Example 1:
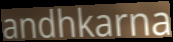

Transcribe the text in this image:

andhkarna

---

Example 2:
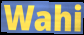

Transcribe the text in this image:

Wahi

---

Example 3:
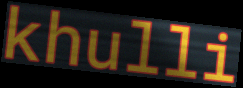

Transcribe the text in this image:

khulli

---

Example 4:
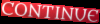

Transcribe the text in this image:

CONTINUE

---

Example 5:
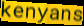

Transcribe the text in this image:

kenyans